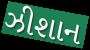
ઝીશાન